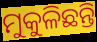
ମୁକୁଳିଛନ୍ତି